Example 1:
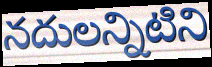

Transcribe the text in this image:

నదులన్నిటిని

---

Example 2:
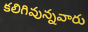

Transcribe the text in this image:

కలిగివున్నవారు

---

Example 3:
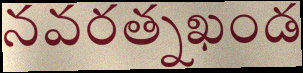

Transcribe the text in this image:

నవరత్నఖండ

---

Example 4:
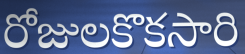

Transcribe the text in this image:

రోజులకొకసారి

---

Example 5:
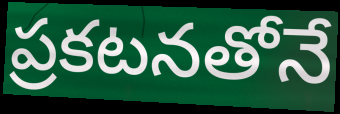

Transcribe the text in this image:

ప్రకటనతోనే